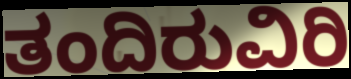
ತಂದಿರುವಿರಿ